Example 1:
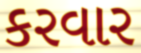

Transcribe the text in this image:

કરવાર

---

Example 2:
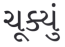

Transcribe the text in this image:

ચૂક્યું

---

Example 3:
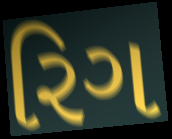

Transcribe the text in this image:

રિગ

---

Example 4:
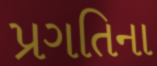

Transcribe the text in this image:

પ્રગતિના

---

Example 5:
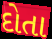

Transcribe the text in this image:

દોતા